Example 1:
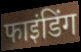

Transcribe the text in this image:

फाइंडिंग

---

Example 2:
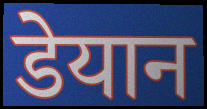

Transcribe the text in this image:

डेयान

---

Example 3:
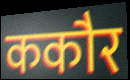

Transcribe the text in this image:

ककौर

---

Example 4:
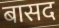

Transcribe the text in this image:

बासद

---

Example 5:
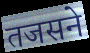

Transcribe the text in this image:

तजसने